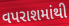
વપરાશમાંથી